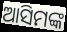
ଆସିମଙ୍କ